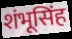
शंभूसिंह